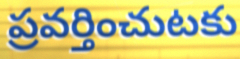
ప్రవర్తించుటకు